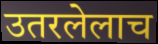
उतरलेलाच